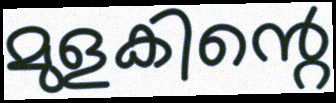
മുളകിന്റെ